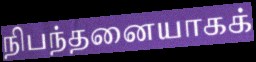
நிபந்தனையாகக்